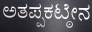
ಅತಪ್ಪಕಟ್ಠೇನ